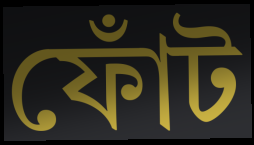
ফোঁট